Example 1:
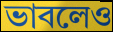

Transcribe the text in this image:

ভাবলেও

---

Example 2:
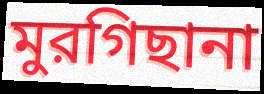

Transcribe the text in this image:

মুরগিছানা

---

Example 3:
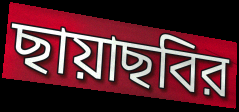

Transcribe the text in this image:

ছায়াছবির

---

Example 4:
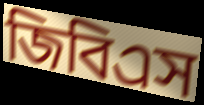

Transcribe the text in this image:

জিবিএস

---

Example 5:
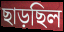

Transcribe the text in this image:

ছাড়ছিল